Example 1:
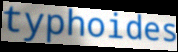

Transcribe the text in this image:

typhoides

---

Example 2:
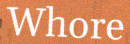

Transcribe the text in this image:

Whore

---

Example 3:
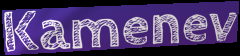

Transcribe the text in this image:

Kamenev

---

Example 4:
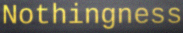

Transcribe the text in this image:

Nothingness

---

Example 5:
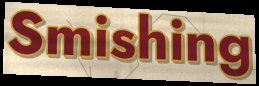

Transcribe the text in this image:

Smishing